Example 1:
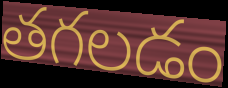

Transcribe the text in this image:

తగలడం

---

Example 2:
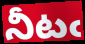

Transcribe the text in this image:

నీటఁ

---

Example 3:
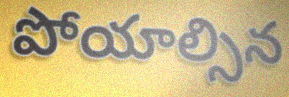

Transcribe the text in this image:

పోయాల్సిన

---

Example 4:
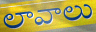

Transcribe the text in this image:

లావాలు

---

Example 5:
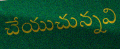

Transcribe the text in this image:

చేయుచున్నవి